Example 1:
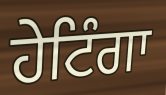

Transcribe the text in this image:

ਹੇਟਿੰਗਾ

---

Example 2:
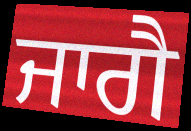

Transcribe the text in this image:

ਜਾਗੈ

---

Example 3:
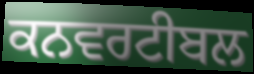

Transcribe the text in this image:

ਕਨਵਰਟੀਬਲ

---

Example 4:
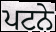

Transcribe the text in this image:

ਪਟਨੇ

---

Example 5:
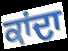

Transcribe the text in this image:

ਕਾਂਦਾ